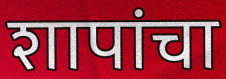
शापांचा